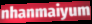
nhanmaiyum